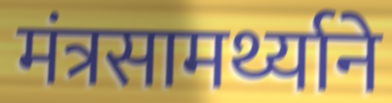
मंत्रसामर्थ्याने